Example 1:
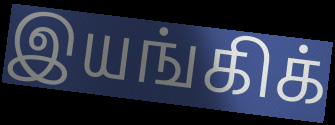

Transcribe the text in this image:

இயங்கிக்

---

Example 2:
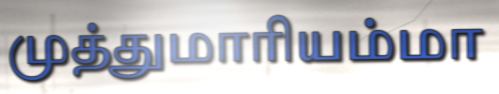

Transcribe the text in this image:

முத்துமாரியம்மா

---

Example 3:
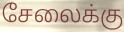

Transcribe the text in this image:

சேலைக்கு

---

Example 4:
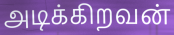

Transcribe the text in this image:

அடிக்கிறவன்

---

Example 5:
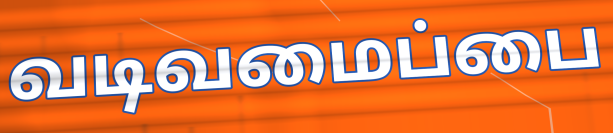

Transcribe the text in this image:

வடிவமைப்பை